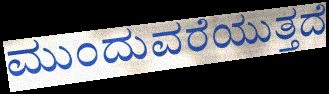
ಮುಂದುವರೆಯುತ್ತದೆ